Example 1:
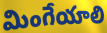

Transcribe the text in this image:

మింగేయాలి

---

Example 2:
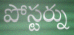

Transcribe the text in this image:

పోస్టర్ను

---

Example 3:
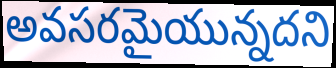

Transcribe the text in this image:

అవసరమైయున్నదని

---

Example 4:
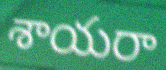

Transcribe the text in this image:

శాయరా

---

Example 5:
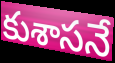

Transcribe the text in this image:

కుశాసనే